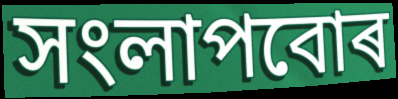
সংলাপবোৰ